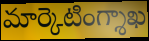
మార్కెటింగ్శాఖ